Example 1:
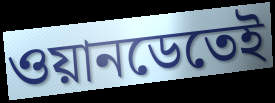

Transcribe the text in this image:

ওয়ানডেতেই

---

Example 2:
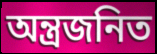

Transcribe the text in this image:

অন্ত্রজনিত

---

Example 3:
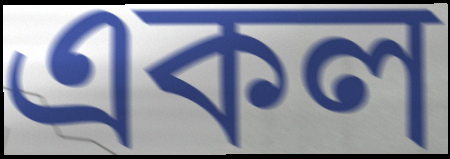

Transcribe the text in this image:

একল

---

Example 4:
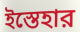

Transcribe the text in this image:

ইস্তেহার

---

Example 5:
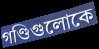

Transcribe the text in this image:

গণ্ডিগুলোকে